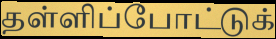
தள்ளிப்போட்டுக்